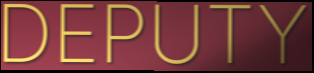
DEPUTY